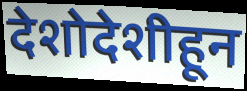
देशोदेशीहून